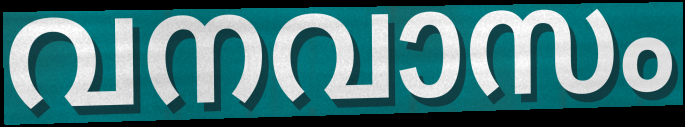
വനവാസം